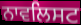
ਨਾਵਲਿਸਟ